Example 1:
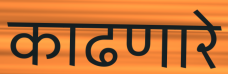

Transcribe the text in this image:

काढणारे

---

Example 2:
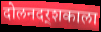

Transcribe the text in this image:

दोलनदर्शकाला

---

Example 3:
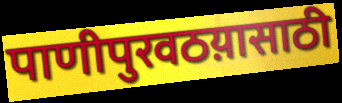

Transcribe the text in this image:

पाणीपुरवठय़ासाठी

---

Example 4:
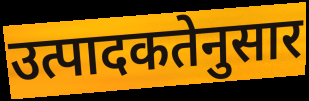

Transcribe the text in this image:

उत्पादकतेनुसार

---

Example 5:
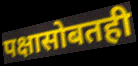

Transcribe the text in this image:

पक्षासोबतही